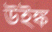
উইঙ্ক